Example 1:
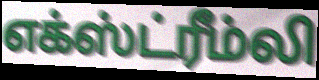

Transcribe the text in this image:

எக்ஸ்ட்ரீம்லி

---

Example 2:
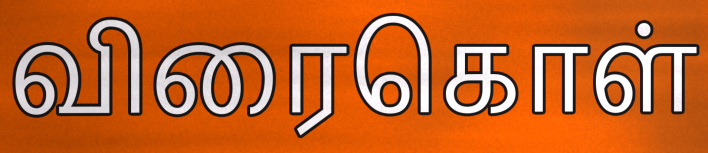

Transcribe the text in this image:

விரைகொள்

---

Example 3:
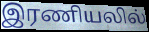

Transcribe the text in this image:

இரணியலில்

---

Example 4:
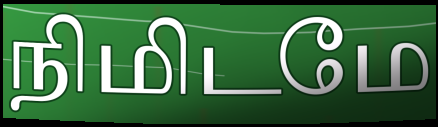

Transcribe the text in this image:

நிமிடமே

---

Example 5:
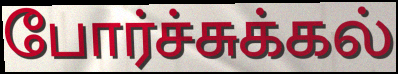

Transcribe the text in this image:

போர்ச்சுக்கல்